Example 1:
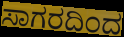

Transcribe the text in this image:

ಸಾಗರದಿಂದ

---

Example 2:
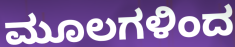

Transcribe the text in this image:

ಮೂಲಗಳಿಂದ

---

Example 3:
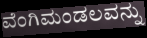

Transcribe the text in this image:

ವೆಂಗಿಮಂಡಲವನ್ನು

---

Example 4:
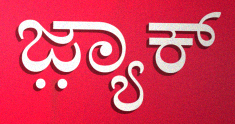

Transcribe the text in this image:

ಜ಼್ಯಾಕ್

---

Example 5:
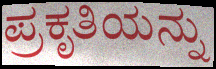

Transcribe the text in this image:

ಪ್ರಕೃತಿಯನ್ನು